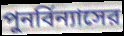
পুনর্বিন্যাসের